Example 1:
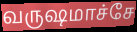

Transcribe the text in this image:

வருஷமாச்சே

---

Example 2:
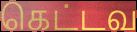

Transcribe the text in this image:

கெட்டவ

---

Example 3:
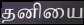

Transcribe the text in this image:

தனியை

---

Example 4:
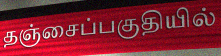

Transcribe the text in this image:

தஞ்சைப்பகுதியில்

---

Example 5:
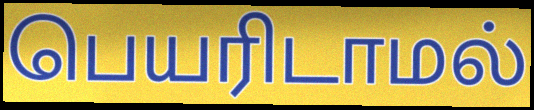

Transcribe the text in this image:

பெயரிடாமல்